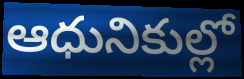
ఆధునికుల్లో